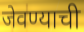
जेवण्याची